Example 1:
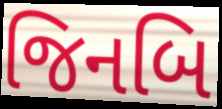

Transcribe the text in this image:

જિનબિ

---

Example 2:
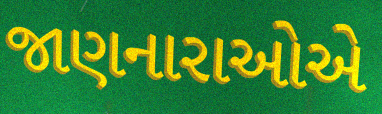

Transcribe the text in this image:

જાણનારાઓએ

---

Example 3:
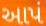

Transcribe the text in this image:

આપં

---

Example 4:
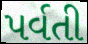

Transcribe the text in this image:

પર્વતી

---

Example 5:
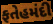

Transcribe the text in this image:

ફતેહમંદી